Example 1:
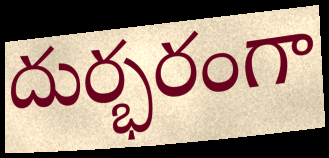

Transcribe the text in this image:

దుర్భరంగా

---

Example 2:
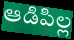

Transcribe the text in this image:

ఆడిపిల్ల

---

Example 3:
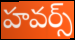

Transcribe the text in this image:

హవర్స్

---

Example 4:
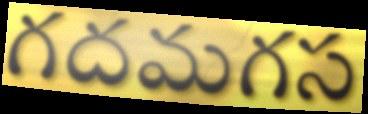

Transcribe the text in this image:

గదమగస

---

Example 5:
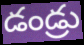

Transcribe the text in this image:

డండ్రు